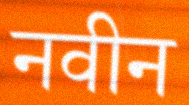
नवीन